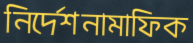
নির্দেশনামাফিক